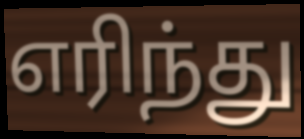
எரிந்து